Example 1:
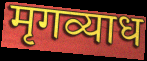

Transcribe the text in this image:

मृगव्याध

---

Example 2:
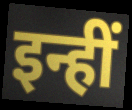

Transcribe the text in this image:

इन्हीं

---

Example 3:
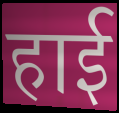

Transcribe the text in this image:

हाई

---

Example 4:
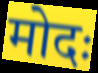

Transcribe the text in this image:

मोदः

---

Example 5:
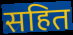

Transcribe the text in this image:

सहित